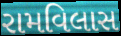
રામવિલાસ